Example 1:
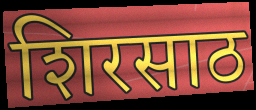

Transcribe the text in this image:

शिरसाठ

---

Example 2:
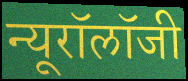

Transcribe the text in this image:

न्यूरॉलॉजी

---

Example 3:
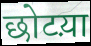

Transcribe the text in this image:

छोटय़ा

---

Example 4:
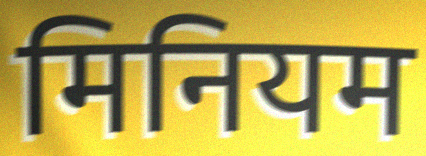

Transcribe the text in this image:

मिनियम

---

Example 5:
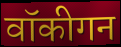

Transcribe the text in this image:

वॉकीगन